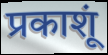
प्रकाशूं